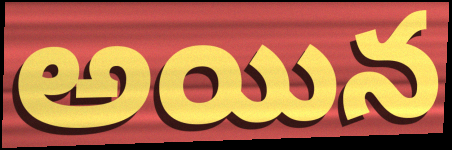
అయిన